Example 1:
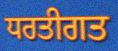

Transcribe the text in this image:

ਧਰਤੀਗਤ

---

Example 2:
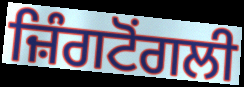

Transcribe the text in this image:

ਜ਼ਿੰਗਟੋਂਗਲੀ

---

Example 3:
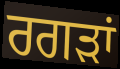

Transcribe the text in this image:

ਰਗੜਾਂ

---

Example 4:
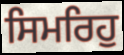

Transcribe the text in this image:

ਸਿਮਰਿਹੁ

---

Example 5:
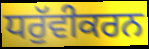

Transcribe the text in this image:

ਧਰੁੱਵੀਕਰਨ